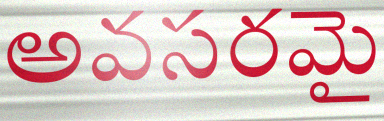
అవసరమై